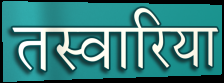
तस्वारिया